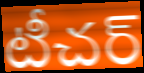
టీచర్